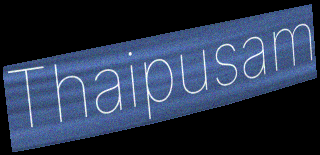
Thaipusam